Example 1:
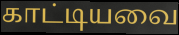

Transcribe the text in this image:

காட்டியவை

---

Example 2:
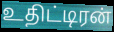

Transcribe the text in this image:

உதிட்டிரன்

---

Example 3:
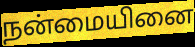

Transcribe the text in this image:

நன்மையினை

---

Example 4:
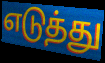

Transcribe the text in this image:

எடுத்து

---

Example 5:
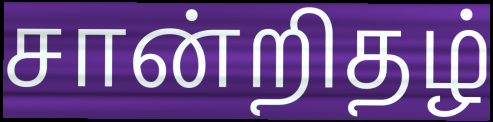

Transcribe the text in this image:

சான்றிதழ்